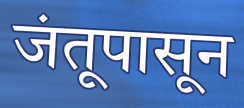
जंतूपासून